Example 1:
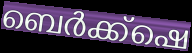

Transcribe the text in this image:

ബെർക്ക്ഷെ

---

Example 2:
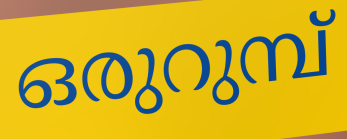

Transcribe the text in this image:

ഒരുറുമ്പ്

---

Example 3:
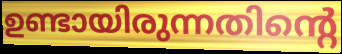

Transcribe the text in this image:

ഉണ്ടായിരുന്നതിന്റെ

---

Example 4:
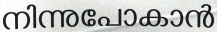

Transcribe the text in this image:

നിന്നുപോകാൻ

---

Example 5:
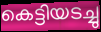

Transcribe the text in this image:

കെട്ടിയടച്ചു